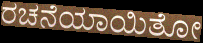
ರಚನೆಯಾಯಿತೋ